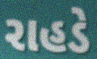
રાહડે